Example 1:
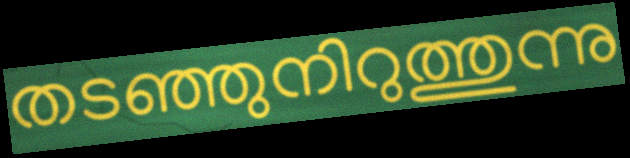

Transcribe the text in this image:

തടഞ്ഞുനിറുത്തുന്നു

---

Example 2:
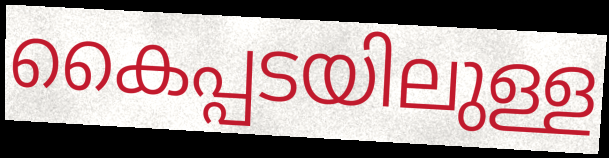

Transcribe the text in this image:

കൈപ്പടയിലുള്ള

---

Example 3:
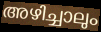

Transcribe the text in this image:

അഴിച്ചാലും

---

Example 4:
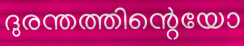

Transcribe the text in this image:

ദുരന്തത്തിന്റെയോ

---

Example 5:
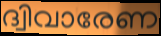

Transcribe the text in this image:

ദ്വിവാരേണ